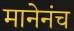
मानेनंच